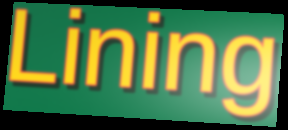
Lining